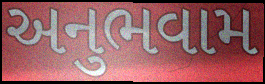
અનુભવામ